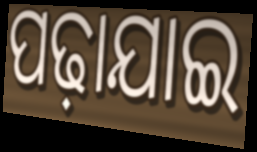
ପଢ଼ାଯାଇ